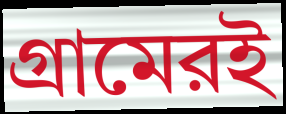
গ্রামেরই